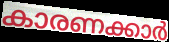
കാരണക്കാർ